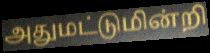
அதுமட்டுமின்றி